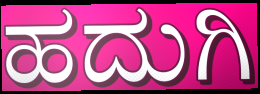
ಹದುಗಿ